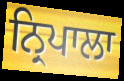
ਨ੍ਰਿਪਾਲਾ